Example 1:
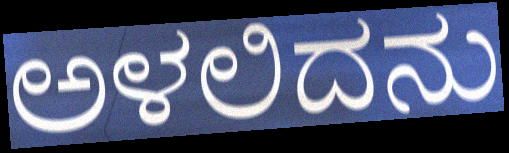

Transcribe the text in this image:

ಅಳಲಿದನು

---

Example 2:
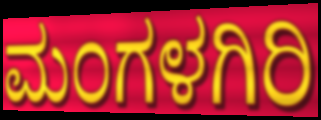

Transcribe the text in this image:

ಮಂಗಳಗಿರಿ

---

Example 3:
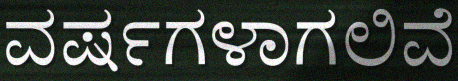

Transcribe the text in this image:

ವರ್ಷಗಳಾಗಲಿವೆ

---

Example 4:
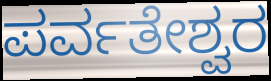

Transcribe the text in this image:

ಪರ್ವತೇಶ್ವರ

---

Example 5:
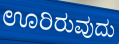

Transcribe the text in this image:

ಊರಿರುವುದು